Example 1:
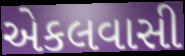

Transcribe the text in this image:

એકલવાસી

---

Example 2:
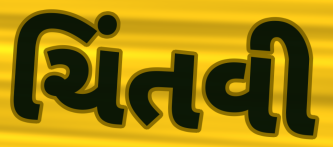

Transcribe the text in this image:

ચિંતવી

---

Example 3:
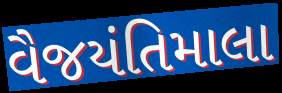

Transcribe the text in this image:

વૈજયંતિમાલા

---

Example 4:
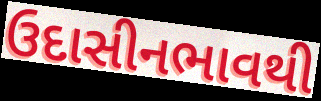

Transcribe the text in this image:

ઉદાસીનભાવથી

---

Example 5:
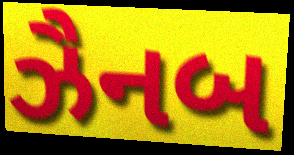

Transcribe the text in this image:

ઝૈનબ